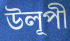
উলূপী